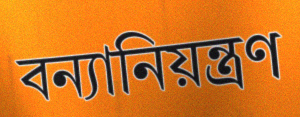
বন্যানিয়ন্ত্রণ